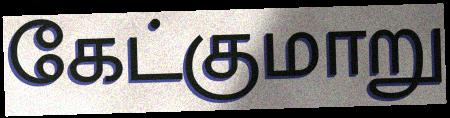
கேட்குமாறு